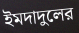
ইমদাদুলের